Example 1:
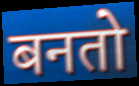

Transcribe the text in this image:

बनतो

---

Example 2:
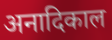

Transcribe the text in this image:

अनादिकाल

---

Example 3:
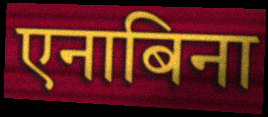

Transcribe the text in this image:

एनाबिना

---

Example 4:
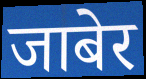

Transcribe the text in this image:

जाबेर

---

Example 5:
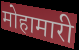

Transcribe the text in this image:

मोहामारी